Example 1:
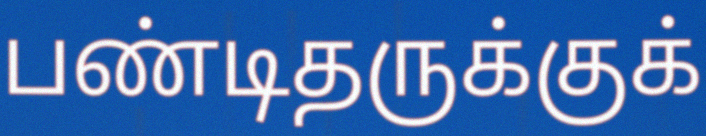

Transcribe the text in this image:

பண்டிதருக்குக்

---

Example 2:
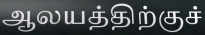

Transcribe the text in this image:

ஆலயத்திற்குச்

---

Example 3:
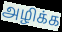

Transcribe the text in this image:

அழிக்க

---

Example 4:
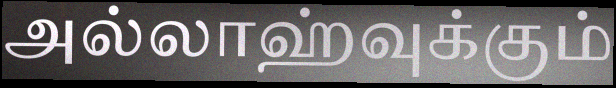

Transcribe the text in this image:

அல்லாஹ்வுக்கும்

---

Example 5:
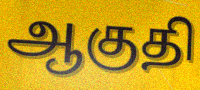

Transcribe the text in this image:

ஆகுதி